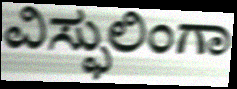
ವಿಸ್ಫುಲಿಂಗಾ